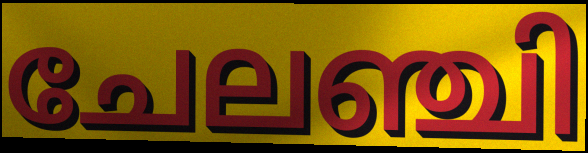
ചേലഞ്ചി